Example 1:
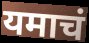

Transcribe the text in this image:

यमाचं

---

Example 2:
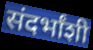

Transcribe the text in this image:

संदर्भांशी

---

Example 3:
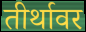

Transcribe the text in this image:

तीर्थावर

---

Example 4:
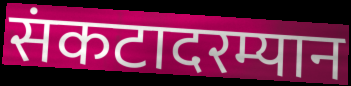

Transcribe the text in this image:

संकटादरम्यान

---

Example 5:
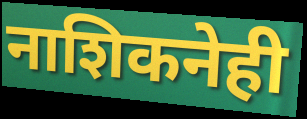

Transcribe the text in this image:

नाशिकनेही